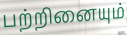
பற்றினையும்